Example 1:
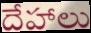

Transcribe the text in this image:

దేహాలు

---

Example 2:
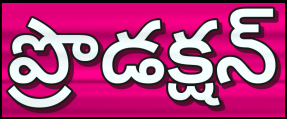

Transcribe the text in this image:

ప్రొడక్షన్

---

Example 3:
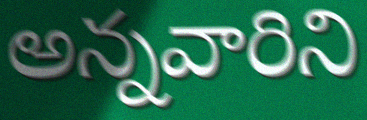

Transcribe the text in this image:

అన్నవారిని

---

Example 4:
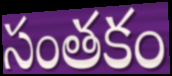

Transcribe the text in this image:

సంతకం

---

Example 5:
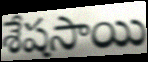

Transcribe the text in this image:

శేషసాయి